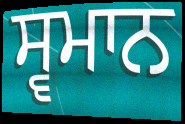
ਸ੍ਵਮਾਨ